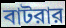
বাটরার